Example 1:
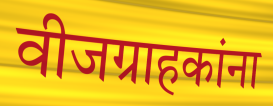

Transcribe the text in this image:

वीजग्राहकांना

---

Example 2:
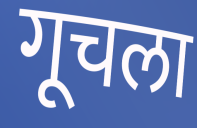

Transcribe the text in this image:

गूचला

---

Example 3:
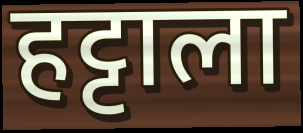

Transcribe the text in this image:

हट्टाला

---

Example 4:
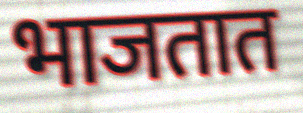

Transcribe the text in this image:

भाजतात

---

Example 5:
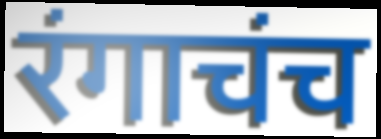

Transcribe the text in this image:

रंगाचंच